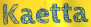
Kaetta